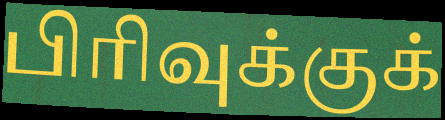
பிரிவுக்குக்